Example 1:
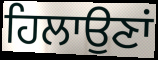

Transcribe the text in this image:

ਹਿਲਾਉਣਾਂ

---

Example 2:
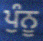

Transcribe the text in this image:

ਪੁੰਨੂ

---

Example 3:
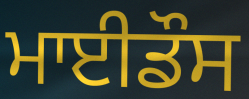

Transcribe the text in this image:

ਮਾਈਡੌਸ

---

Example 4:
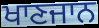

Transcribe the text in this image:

ਖਾਣਜਾਨ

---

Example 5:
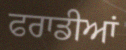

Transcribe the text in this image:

ਫਰਾਡੀਆਂ